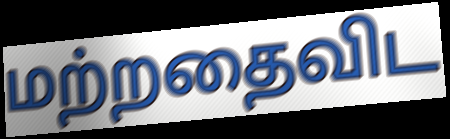
மற்றதைவிட